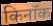
किनॉक